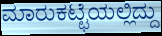
ಮಾರುಕಟ್ಟೆಯಲ್ಲಿದ್ದು